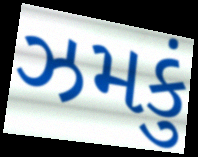
ઝમકું